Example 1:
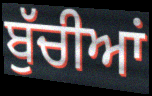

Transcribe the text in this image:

ਬੁੱਚੀਆਂ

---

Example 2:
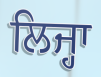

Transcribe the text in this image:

ਲਿਜ੍ਹਾ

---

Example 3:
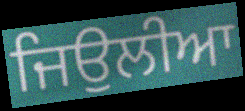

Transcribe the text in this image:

ਜਿਉਲੀਆ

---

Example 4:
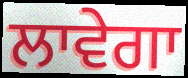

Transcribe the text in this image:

ਲਾਵੇਗਾ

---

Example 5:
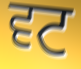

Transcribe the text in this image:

ਵਟ